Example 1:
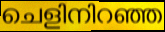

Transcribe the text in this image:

ചെളിനിറഞ്ഞ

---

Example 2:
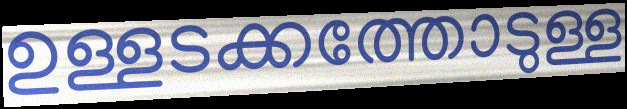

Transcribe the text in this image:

ഉള്ളടക്കത്തോടുള്ള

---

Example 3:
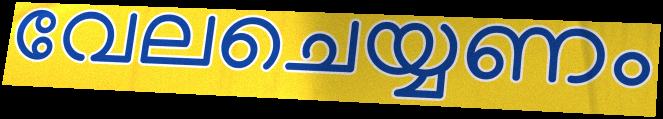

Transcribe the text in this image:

വേലചെയ്യണം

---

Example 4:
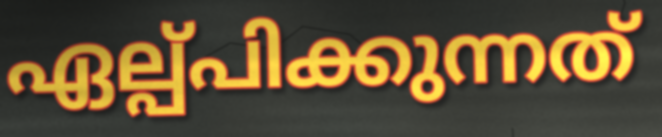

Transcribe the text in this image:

ഏല്പ്പിക്കുന്നത്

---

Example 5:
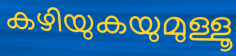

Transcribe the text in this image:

കഴിയുകയുമുള്ളൂ